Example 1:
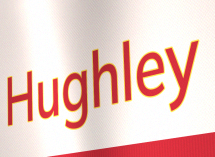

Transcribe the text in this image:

Hughley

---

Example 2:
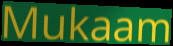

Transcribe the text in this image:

Mukaam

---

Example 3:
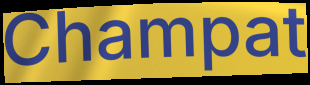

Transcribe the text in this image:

Champat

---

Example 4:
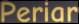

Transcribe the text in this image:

Periar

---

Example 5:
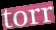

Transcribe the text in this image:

torr